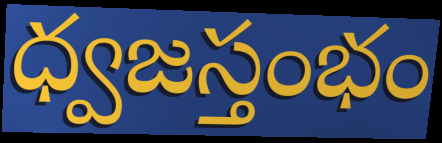
ధ్వజస్తంభం